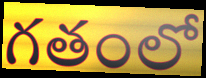
గతంలో